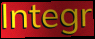
Integr